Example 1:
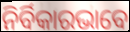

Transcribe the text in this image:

ନିର୍ବିକାରଭାବେ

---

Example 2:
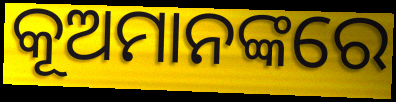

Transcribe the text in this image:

କୂଅମାନଙ୍କରେ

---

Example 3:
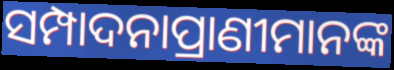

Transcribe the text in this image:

ସମ୍ପାଦନାପ୍ରାଣୀମାନଙ୍କ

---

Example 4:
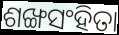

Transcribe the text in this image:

ଶଙ୍ଖସଂହିତା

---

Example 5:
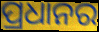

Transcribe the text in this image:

ପ୍ରଧାନର